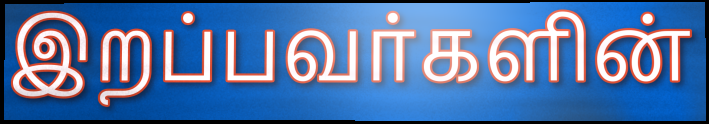
இறப்பவர்களின்